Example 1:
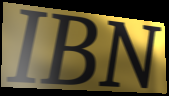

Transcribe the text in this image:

IBN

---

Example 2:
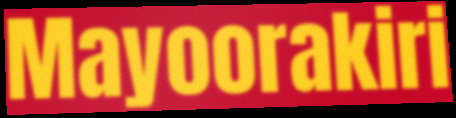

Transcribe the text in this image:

Mayoorakiri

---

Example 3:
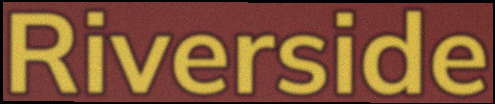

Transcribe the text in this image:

Riverside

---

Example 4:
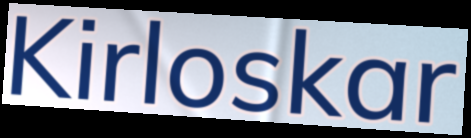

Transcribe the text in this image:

Kirloskar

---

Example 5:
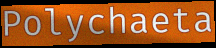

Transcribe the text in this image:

Polychaeta